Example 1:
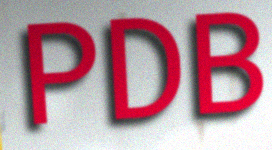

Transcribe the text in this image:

PDB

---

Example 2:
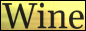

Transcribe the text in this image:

Wine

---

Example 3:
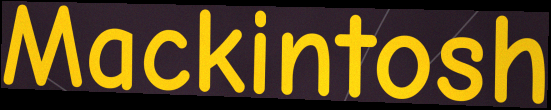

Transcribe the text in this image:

Mackintosh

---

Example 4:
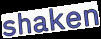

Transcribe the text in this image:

shaken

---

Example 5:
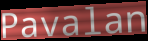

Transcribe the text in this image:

Pavalan